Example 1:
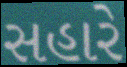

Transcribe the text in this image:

સહારે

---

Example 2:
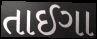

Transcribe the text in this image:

તાઈગા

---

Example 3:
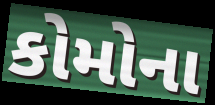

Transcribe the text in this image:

કોમોના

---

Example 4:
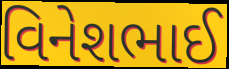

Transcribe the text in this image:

વિનેશભાઈ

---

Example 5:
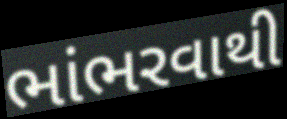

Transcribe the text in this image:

ભાંભરવાથી